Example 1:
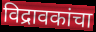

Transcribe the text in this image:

विद्रावकांचा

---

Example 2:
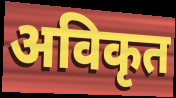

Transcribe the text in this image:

अविकृत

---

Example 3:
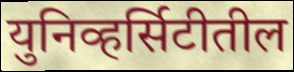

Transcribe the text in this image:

युनिव्हर्सिटीतील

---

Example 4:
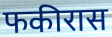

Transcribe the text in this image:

फकीरास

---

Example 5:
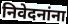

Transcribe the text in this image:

निवेदनांना